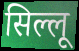
सिल्लू